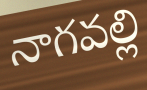
నాగవల్లి